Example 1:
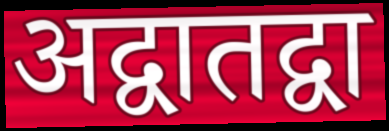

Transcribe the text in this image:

अद्वातद्वा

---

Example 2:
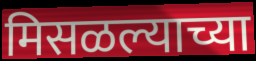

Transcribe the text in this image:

मिसळल्याच्या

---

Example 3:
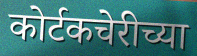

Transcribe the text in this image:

कोर्टकचेरीच्या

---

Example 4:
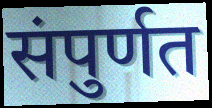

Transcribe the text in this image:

संपुर्णत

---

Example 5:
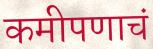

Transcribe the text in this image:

कमीपणाचं